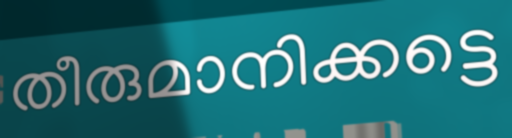
തീരുമാനിക്കട്ടെ